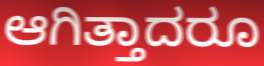
ಆಗಿತ್ತಾದರೂ